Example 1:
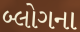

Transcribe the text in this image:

બ્લોગના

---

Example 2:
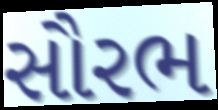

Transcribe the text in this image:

સૌરભ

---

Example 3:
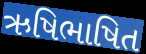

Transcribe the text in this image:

ઋષિભાષિત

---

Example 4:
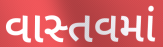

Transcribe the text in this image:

વાસ્તવમાં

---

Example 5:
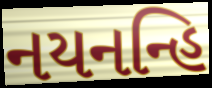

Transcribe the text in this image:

નયનન્હિ